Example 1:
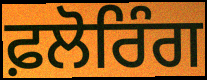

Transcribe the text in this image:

ਫ਼ਲੋਰਿੰਗ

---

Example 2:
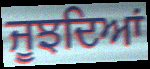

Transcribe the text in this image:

ਜੂਝਦਿਆਂ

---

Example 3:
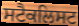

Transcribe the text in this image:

ਸਟੈਕਲਿਸਟ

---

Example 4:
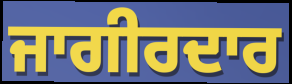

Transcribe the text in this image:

ਜਾਗੀਰਦਾਰ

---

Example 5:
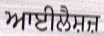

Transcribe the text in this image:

ਆਈਲੈਸ਼ਜ਼